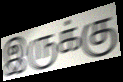
இருக்கு